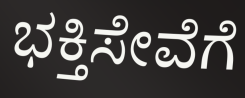
ಭಕ್ತಿಸೇವೆಗೆ